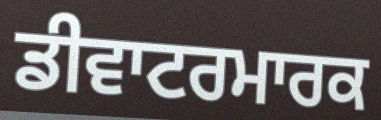
ਡੀਵਾਟਰਮਾਰਕ